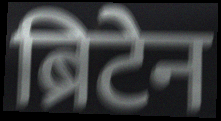
ब्रिटेन